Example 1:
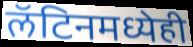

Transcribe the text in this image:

लॅटिनमध्येही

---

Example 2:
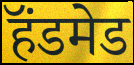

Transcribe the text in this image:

हॅंडमेड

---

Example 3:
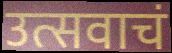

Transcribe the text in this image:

उत्सवाचं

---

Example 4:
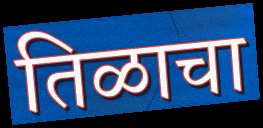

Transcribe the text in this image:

तिळाचा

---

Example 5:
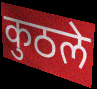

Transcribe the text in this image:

कुठले